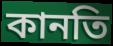
কানতি